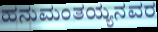
ಹನುಮಂತಯ್ಯನವರ